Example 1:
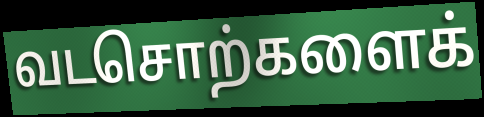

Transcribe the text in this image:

வடசொற்களைக்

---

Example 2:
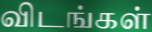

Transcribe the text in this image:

விடங்கள்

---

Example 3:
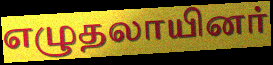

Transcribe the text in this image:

எழுதலாயினர்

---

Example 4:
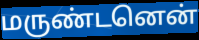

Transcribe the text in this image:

மருண்டனென்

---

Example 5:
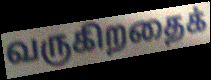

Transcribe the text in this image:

வருகிறதைக்